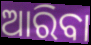
ଆରିବା